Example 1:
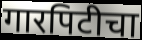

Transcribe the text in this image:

गारपिटीचा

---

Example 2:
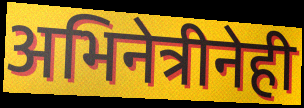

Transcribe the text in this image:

अभिनेत्रीनेही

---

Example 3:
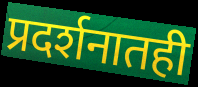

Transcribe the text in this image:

प्रदर्शनातही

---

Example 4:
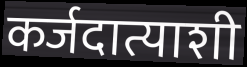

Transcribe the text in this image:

कर्जदात्याशी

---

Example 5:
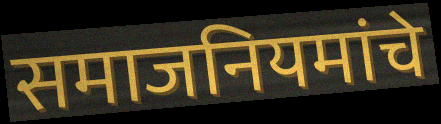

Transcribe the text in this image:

समाजनियमांचे